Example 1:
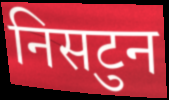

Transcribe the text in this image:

निसटुन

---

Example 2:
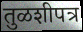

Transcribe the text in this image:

तुळशीपत्र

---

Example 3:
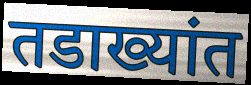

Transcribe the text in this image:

तडाख्यांत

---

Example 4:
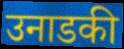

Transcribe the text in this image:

उनाडकी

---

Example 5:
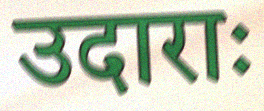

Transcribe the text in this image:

उदाराः